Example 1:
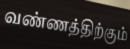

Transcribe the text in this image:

வண்ணத்திற்கும்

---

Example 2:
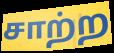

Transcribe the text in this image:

சாற்ற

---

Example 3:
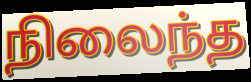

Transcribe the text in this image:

நிலைந்த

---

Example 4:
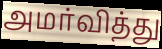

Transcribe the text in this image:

அமர்வித்து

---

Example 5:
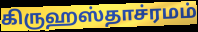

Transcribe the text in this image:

கிருஹஸ்தாச்ரமம்